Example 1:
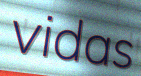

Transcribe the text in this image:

vidas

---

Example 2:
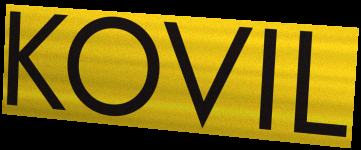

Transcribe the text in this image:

KOVIL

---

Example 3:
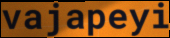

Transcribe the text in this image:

vajapeyi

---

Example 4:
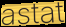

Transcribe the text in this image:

astat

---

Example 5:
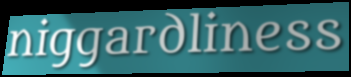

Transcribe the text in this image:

niggardliness